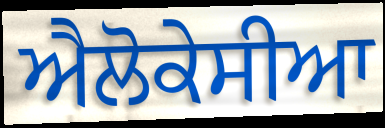
ਐਲੋਕੇਸੀਆ